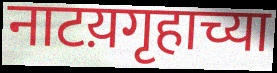
नाटय़गृहाच्या